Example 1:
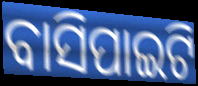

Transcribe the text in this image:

ବାସିପାଇଟି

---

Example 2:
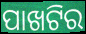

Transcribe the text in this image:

ପାଖଟିର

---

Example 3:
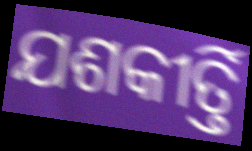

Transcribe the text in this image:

ଯଶକୀର୍ତ୍ତି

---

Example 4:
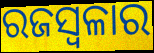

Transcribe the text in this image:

ରଜସ୍ୱଳାର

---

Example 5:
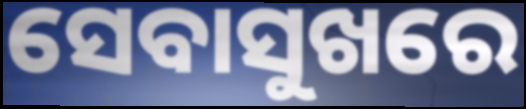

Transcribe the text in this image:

ସେବାସୁଖରେ